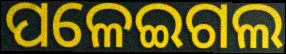
ପଳେଇଗଲ